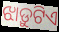
ଝାଡ଼ୁଟିଏ